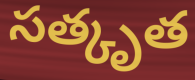
సత్కృత